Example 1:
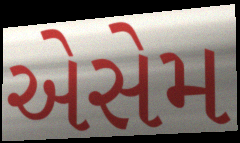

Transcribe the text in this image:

એસેમ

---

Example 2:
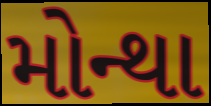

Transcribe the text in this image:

મોન્થા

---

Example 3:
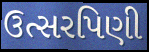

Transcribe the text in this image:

ઉત્સરપિણી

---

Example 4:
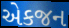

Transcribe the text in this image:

એકજન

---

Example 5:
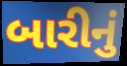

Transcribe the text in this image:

બારીનું